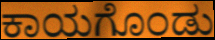
ಕಾಯಗೊಂಡು